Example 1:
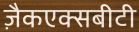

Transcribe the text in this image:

ज़ैकएक्सबीटी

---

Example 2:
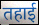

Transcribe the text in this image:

तहाई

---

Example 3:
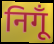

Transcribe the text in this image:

निगूँ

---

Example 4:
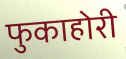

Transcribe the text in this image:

फुकाहोरी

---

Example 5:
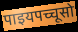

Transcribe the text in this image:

पाइयपच्चूसो